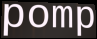
pomp